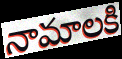
నామాలకి